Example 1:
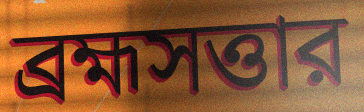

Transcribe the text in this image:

ব্রহ্মসত্তার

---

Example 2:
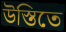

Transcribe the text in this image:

উস্তিতে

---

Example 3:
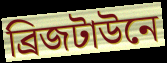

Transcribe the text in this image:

ব্রিজটাউনে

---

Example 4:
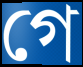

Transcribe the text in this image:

গে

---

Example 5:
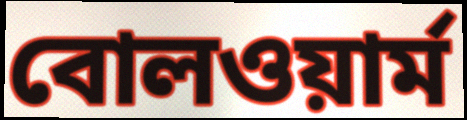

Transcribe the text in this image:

বোলওয়ার্ম